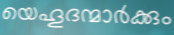
യെഹൂദന്മാർക്കും